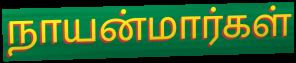
நாயன்மார்கள்